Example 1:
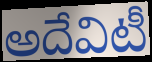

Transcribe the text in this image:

అదేవిటీ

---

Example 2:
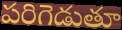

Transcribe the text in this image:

పరిగెడుతూ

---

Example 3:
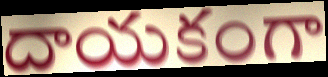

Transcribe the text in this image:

దాయకంగా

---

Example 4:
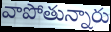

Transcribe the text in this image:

వాపోతున్నారు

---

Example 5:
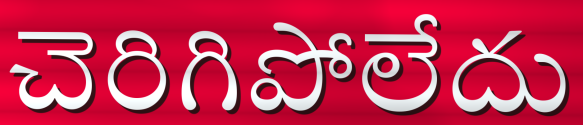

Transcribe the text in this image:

చెరిగిపోలేదు